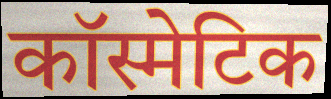
कॉस्मेटिक